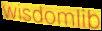
wisdomlib